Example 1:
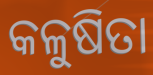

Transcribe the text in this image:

କଳୁଷିତା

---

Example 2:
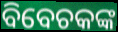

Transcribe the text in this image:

ବିବେଚକଙ୍କ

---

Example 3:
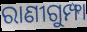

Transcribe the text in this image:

ରାଣୀଗୁମ୍ଫା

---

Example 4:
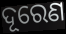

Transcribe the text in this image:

ଦୂରେଣ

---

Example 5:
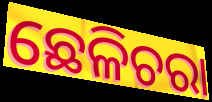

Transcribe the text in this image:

ଛେଳିଚରା